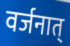
वर्जनात्